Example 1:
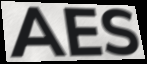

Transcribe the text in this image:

AES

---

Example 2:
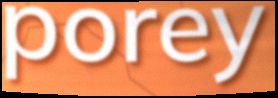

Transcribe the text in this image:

porey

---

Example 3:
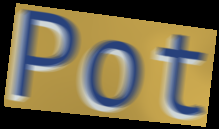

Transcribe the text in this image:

Pot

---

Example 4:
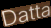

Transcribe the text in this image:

Datta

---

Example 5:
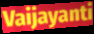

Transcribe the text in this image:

Vaijayanti